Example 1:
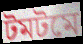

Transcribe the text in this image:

টমটমে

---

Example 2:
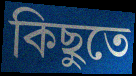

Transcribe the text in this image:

কিছুতে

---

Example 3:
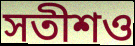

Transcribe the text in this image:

সতীশও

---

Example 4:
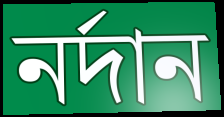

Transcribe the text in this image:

নর্দান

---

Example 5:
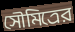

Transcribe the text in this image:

সৌমিত্রের